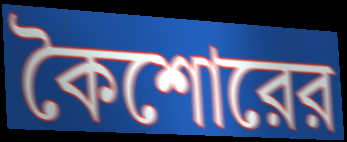
কৈশোরের